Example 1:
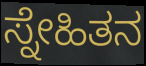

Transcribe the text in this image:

ಸ್ನೇಹಿತನ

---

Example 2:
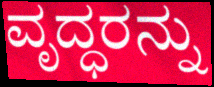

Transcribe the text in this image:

ವೃದ್ಧರನ್ನು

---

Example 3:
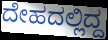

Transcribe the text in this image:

ದೇಹದಲ್ಲಿದ್ದ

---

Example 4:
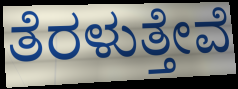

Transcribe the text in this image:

ತೆರಳುತ್ತೇವೆ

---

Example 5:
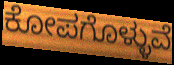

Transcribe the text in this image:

ಕೋಪಗೊಳ್ಳುವೆ